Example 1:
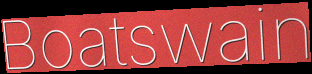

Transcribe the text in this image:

Boatswain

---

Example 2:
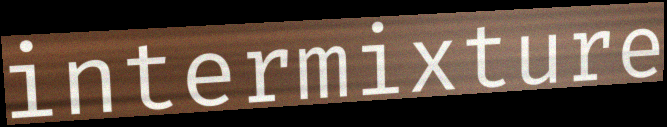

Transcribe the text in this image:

intermixture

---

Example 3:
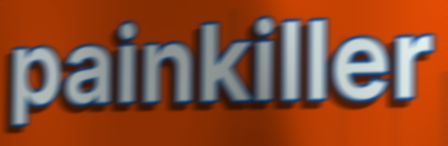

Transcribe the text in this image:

painkiller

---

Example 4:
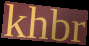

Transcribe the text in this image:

khbr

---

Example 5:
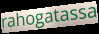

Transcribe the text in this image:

rahogatassa